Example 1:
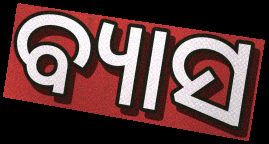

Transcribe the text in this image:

ବ୍ୟାସ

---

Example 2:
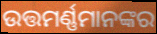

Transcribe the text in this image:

ଉତ୍ତମର୍ଣ୍ଣମାନଙ୍କର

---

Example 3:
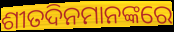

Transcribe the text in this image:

ଶୀତଦିନମାନଙ୍କରେ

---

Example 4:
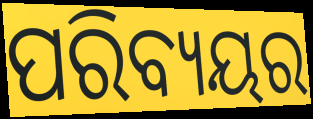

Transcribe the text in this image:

ପରିବ୍ୟୟର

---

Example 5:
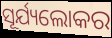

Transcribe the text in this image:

ସୂର୍ଯ୍ୟଲୋକର